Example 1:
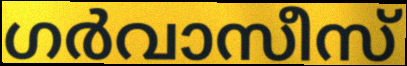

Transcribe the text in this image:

ഗർവാസീസ്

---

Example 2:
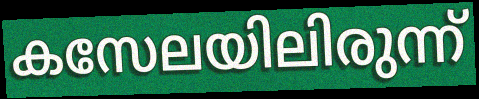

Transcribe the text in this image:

കസേലയിലിരുന്ന്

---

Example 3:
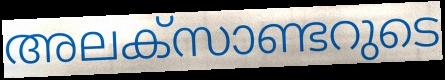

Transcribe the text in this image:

അലക്സാണ്ടറുടെ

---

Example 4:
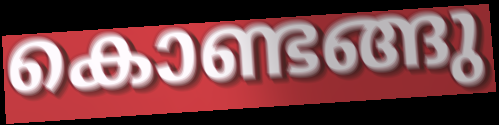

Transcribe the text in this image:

കൊണ്ടങ്ങു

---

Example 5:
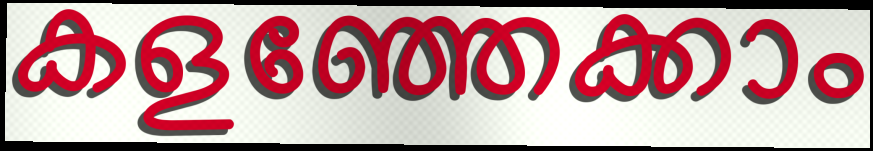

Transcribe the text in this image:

കളഞ്ഞേക്കാം